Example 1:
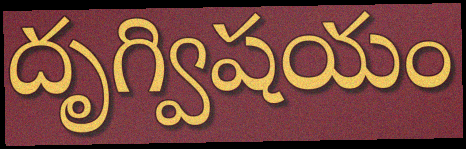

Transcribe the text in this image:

దృగ్విషయం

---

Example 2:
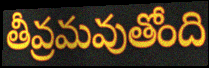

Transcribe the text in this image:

తీవ్రమవుతోంది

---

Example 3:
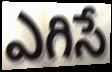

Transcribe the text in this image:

ఎగిసే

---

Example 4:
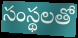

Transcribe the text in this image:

సంస్థలతో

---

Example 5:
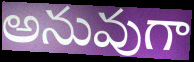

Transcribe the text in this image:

అనువుగా